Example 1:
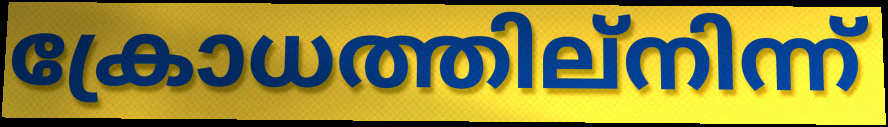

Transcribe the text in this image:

ക്രോധത്തില്നിന്ന്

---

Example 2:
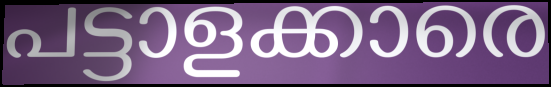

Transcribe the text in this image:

പട്ടാളക്കാരെ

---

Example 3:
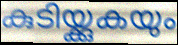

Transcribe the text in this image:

കുടിയ്ക്കുകയും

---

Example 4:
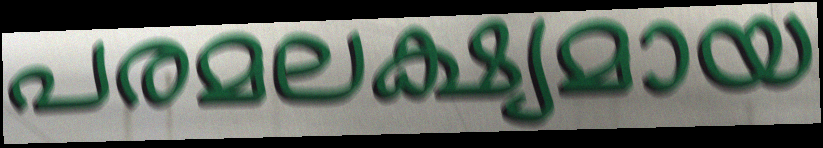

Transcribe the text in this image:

പരമലക്ഷ്യമായ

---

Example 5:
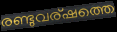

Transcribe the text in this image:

രണ്ടുവര്ഷത്തെ